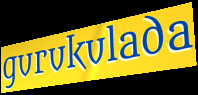
gurukulada